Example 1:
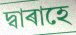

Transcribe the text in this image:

দ্বাৰাহে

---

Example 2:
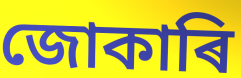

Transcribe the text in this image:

জোকাৰি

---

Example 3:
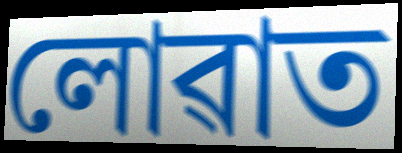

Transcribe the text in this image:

লোৱাত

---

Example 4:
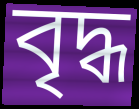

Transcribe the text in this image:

বৃদ্ধ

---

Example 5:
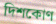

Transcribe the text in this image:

দিশকোণ